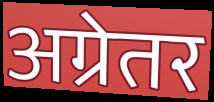
अग्रेतर